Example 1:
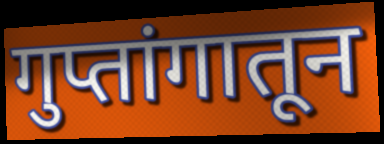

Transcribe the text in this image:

गुप्तांगातून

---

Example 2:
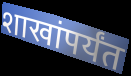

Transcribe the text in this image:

शाखांपर्यंत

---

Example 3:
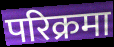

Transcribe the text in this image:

परिक्रमा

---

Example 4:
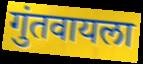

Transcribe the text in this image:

गुंतवायला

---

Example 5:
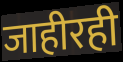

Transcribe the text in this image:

जाहीरही